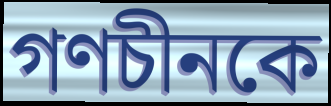
গণচীনকে